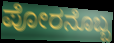
ಪೋರನೊಬ್ಬ